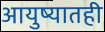
आयुष्यातही